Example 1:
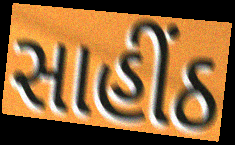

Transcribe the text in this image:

સાહીંઠ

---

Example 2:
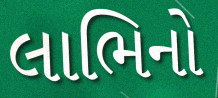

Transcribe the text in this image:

લાભિનો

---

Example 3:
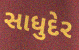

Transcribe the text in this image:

સાધુદેર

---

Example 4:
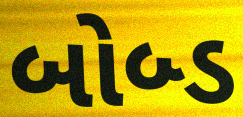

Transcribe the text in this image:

બોબ્ડ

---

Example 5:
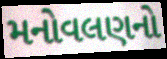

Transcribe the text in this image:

મનોવલણનો